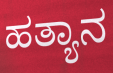
ಹತ್ಯಾನ